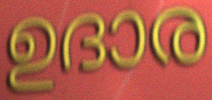
ഉദാര